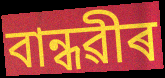
বান্ধৱীৰ